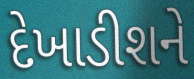
દેખાડીશને